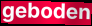
geboden